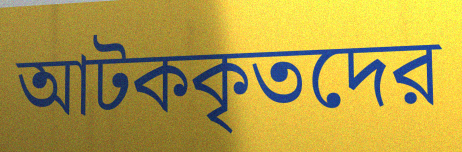
আটককৃতদের